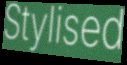
Stylised